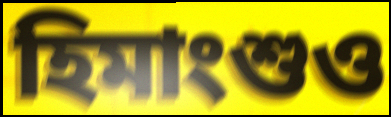
হিমাংশুও